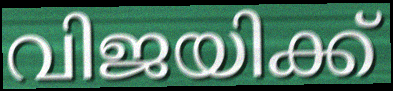
വിജയിക്ക്